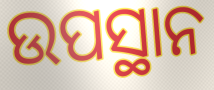
ଉପସ୍ଥାନ